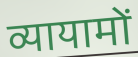
व्यायामों